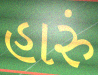
હારું